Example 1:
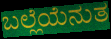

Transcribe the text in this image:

ಬಲ್ಲೆಯೆನುತ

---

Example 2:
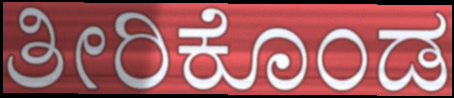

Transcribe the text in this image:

ತೀರಿಕೊಂಡ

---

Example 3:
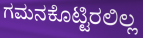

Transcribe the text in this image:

ಗಮನಕೊಟ್ಟಿರಲಿಲ್ಲ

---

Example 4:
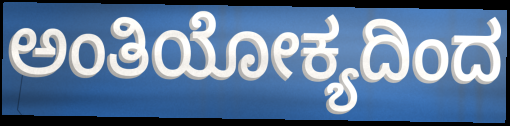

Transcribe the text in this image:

ಅಂತಿಯೋಕ್ಯದಿಂದ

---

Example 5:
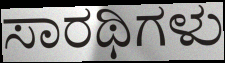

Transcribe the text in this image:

ಸಾರಥಿಗಳು